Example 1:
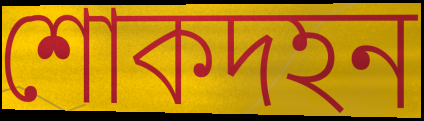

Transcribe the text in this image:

শোকদহন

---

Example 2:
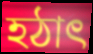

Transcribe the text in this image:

হঠাৎ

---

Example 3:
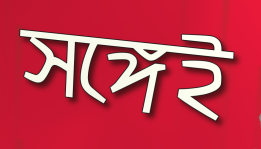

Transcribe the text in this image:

সঙ্গেই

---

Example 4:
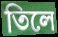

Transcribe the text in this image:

তিলে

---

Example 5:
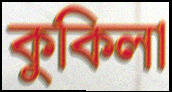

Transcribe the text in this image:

কুকিলা